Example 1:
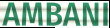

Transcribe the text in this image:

AMBANI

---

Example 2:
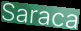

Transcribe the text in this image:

Saraca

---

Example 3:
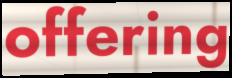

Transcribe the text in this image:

offering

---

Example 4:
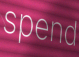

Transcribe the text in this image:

spend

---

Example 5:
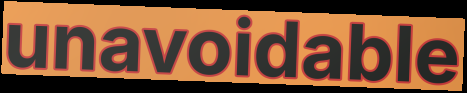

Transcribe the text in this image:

unavoidable